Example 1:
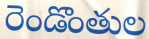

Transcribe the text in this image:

రెండొంతుల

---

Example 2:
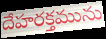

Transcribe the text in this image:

దేహరక్తమును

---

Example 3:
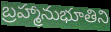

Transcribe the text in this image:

బ్రహ్మానుభూతిని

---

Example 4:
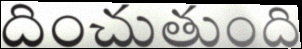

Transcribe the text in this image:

దించుతుంది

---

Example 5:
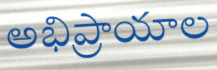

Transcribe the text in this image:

అభిప్రాయాల